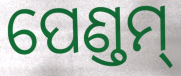
ପେଣ୍ଡମ୍